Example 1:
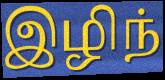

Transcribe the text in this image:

இழிந்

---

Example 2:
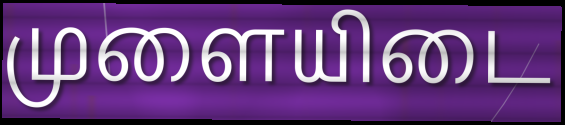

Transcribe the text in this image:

முளையிடை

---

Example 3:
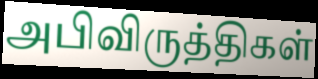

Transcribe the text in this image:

அபிவிருத்திகள்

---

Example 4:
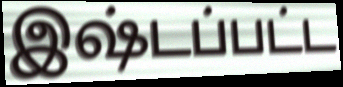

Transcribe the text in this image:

இஷ்டப்பட்ட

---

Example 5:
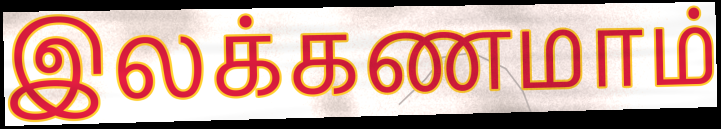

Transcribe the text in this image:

இலக்கணமாம்